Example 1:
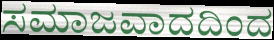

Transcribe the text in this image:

ಸಮಾಜವಾದದಿಂದ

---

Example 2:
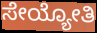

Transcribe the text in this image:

ಸೇಯ್ಯೋತಿ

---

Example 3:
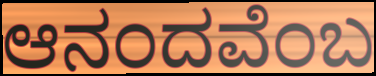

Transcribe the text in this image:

ಆನಂದವೆಂಬ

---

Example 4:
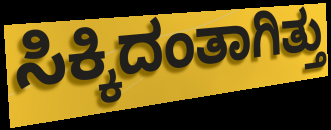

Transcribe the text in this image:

ಸಿಕ್ಕಿದಂತಾಗಿತ್ತು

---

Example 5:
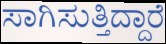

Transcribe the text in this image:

ಸಾಗಿಸುತ್ತಿದ್ದಾರೆ